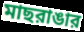
মাছরাঙার